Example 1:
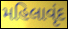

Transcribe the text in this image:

મહિલાવૃંદ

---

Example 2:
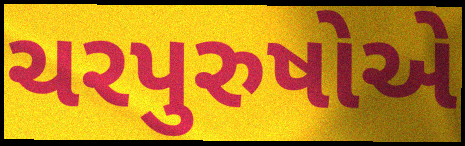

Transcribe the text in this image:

ચરપુરુષોએ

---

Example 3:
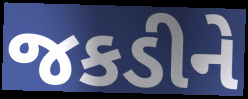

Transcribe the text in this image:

જકડીને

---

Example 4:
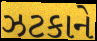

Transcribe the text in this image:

ઝટકાને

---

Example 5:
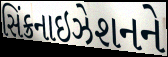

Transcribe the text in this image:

સિંક્રનાઇઝેશનને